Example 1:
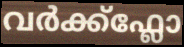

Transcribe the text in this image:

വർക്ക്ഫ്ലോ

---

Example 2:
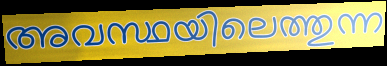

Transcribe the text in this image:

അവസ്ഥയിലെത്തുന്ന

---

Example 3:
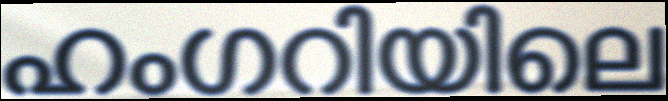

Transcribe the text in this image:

ഹംഗറിയിലെ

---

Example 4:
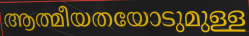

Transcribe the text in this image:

ആത്മീയതയോടുമുള്ള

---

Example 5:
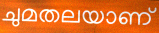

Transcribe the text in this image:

ചുമതലയാണ്